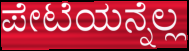
ಪೇಟೆಯನ್ನೆಲ್ಲ